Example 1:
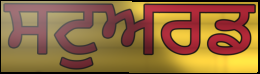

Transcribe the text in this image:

ਸਟੁਅਰਡ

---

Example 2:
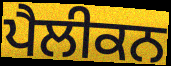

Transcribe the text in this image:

ਪੈਲੀਕਨ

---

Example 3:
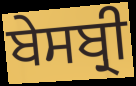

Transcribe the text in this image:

ਬੇਸਬ੍ਰੀ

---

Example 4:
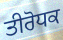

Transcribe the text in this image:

ਤੀਰੋਧਕ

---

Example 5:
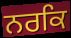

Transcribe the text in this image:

ਨਰਕਿ